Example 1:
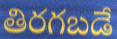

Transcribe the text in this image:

తిరగబడే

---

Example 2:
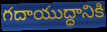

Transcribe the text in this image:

గదాయుద్ధానికి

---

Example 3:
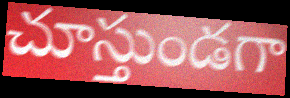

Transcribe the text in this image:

చూస్తుండగా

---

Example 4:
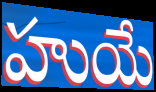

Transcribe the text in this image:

హుయే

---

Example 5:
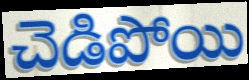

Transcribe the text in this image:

చెడిపోయి